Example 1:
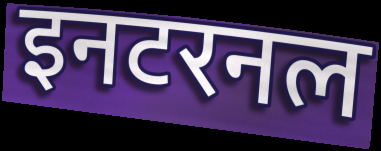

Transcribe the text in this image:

इनटरनल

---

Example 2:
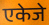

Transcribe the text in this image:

एकेजे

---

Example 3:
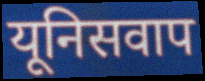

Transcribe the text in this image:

यूनिसवाप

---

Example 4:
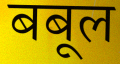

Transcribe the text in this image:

बबूल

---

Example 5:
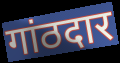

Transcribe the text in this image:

गांठदार